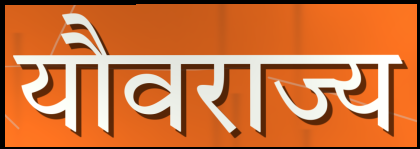
यौवराज्य